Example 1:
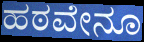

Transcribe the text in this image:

ಹಠವೇನೂ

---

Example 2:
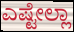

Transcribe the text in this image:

ಎಷ್ಟೇಲ್ಲಾ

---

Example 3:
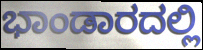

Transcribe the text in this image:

ಭಾಂಡಾರದಲ್ಲಿ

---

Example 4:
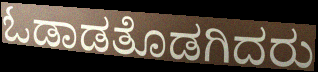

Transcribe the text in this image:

ಓಡಾಡತೊಡಗಿದರು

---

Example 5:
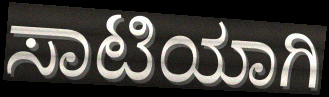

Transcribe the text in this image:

ಸಾಟಿಯಾಗಿ